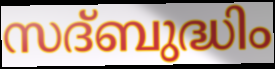
സദ്ബുദ്ധിം